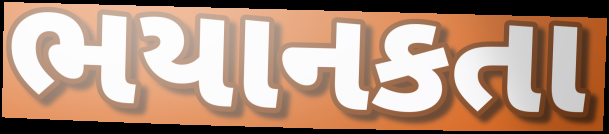
ભયાનકતા